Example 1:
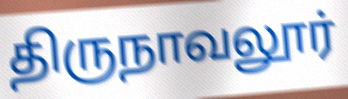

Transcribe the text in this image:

திருநாவலூர்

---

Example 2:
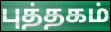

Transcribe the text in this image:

புத்தகம்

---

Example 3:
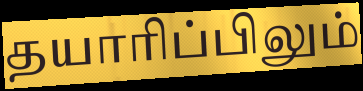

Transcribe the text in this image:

தயாரிப்பிலும்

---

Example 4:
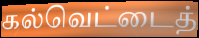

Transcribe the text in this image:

கல்வெட்டைத்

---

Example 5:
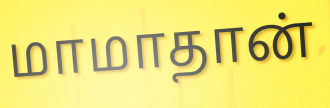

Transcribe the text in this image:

மாமாதான்